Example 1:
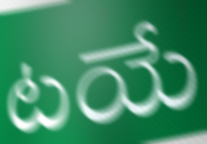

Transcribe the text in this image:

టయే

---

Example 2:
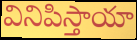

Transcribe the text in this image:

వినిపిస్తాయా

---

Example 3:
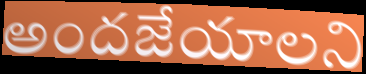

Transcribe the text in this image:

అందజేయాలని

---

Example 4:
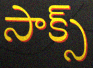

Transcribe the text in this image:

సాక్స్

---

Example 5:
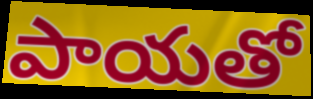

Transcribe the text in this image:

పాయతో